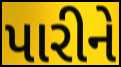
પારીને